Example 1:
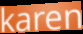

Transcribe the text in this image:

karen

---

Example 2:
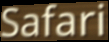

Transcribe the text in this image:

Safari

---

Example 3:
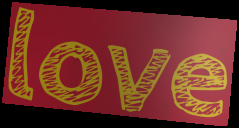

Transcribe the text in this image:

love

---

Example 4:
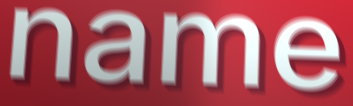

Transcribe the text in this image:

name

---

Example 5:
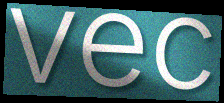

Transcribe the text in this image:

vec